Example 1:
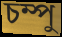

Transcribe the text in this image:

চম্পু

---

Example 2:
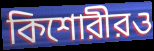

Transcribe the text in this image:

কিশোরীরও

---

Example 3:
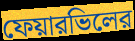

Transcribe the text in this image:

ফেয়ারভিলের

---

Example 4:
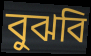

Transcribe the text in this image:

বুঝবি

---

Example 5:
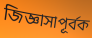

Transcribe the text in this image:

জিজ্ঞাসাপূর্বক